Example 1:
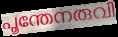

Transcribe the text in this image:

പൂന്തേനരുവി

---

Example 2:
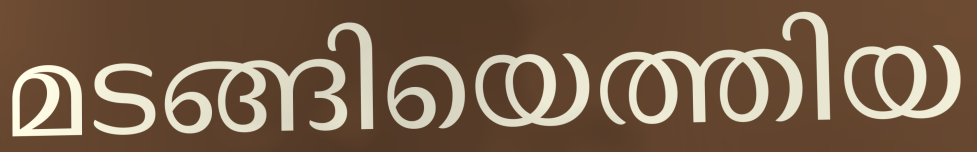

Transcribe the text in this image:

മടങ്ങിയെത്തിയ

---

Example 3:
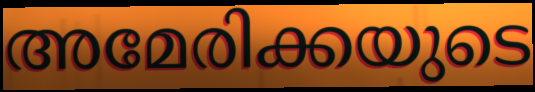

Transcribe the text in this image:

അമേരിക്കയുടെ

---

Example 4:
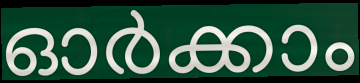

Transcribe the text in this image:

ഓർക്കാം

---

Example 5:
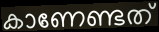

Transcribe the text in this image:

കാണേണ്ടത്